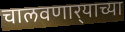
चालवणार्‍याच्या